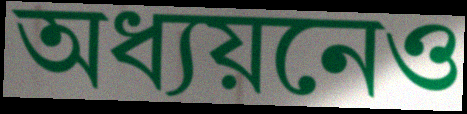
অধ্যয়নেও